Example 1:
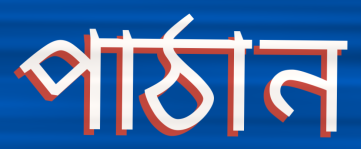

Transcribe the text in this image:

পাঠান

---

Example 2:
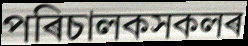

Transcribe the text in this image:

পৰিচালকসকলৰ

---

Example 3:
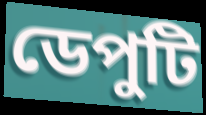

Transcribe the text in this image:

ডেপুটি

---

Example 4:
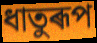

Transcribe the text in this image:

ধাতুৰূপ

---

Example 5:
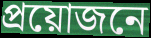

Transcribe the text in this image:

প্ৰয়োজনে